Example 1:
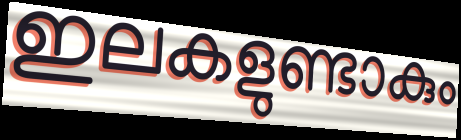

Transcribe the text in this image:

ഇലകളുണ്ടാകും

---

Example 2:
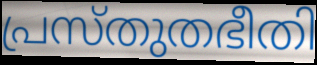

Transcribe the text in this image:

പ്രസ്തുതഭീതി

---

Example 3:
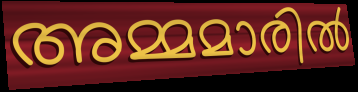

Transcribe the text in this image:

അമ്മമാരിൽ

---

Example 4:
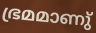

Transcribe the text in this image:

ഭ്രമമാണു്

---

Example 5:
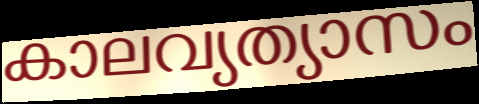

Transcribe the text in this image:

കാലവ്യത്യാസം